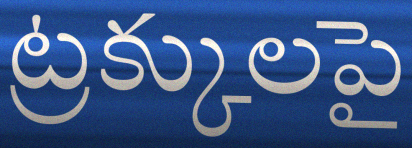
ట్రక్కులపై